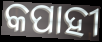
କପାହୀ